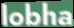
lobha